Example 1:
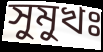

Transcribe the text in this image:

সুমুখঃ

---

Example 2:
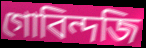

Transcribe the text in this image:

গোবিন্দজি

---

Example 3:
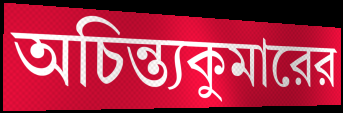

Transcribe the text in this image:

অচিন্ত্যকুমারের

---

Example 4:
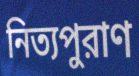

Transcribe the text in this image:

নিত্যপুরাণ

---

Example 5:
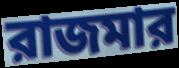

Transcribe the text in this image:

রাজমার